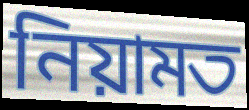
নিয়ামত